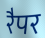
रैपर